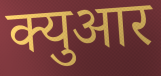
क्युआर